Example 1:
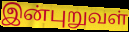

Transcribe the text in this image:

இன்புறுவள்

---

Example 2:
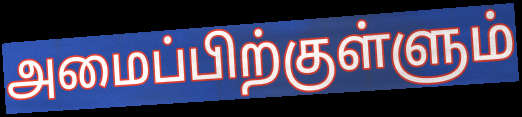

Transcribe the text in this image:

அமைப்பிற்குள்ளும்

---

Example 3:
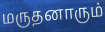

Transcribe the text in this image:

மருதனாரும்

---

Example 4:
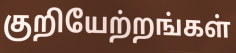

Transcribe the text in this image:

குறியேற்றங்கள்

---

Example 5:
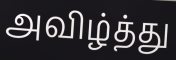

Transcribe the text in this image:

அவிழ்த்து